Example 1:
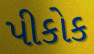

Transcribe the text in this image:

પીકોક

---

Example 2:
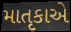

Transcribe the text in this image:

માતૃકાએ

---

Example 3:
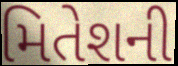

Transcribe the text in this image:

મિતેશની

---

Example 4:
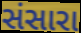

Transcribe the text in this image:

સંસારા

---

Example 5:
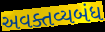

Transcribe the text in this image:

અવક્તવ્યબંધ